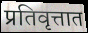
प्रतिवृत्तात